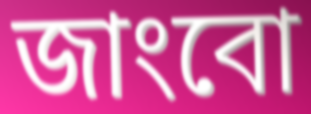
জাংবো